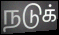
நடுக்